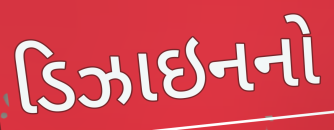
ડિઝાઇનનો